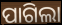
ପାଗିଲା